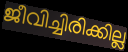
ജീവിച്ചിരിക്കില്ല